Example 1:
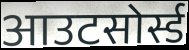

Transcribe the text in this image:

आउटसोर्स्ड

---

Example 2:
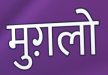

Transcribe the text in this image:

मुग़लो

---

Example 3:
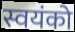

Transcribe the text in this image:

स्वयंको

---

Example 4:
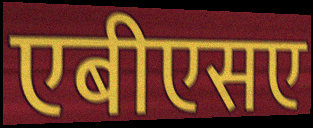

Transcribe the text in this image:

एबीएसए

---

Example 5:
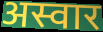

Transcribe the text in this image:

अस्वार